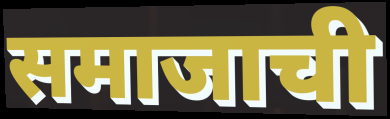
समाजाची